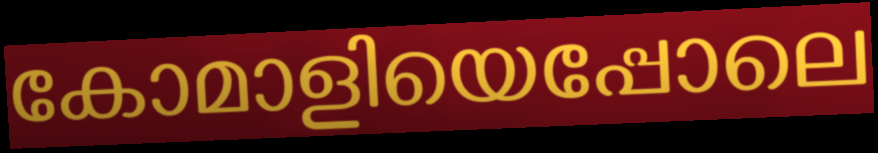
കോമാളിയെപ്പോലെ